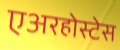
एअरहोस्टेस